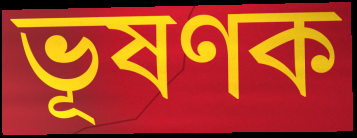
ভূষণক